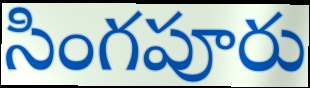
సింగపూరు